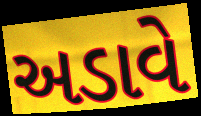
અડાવે